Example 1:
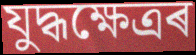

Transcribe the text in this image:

যুদ্ধক্ষেত্ৰৰ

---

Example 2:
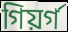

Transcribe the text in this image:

গিয়ৰ্গ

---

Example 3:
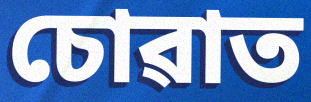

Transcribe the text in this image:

চোৱাত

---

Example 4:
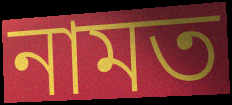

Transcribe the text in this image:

নামত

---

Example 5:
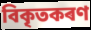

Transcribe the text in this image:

বিকৃতকৰণ